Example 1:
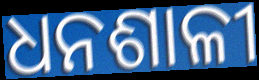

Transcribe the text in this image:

ଧନଶାଳୀ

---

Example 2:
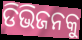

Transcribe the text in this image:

ଡିଭିଜନକୁ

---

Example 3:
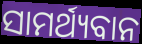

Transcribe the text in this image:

ସାମର୍ଥ୍ୟବାନ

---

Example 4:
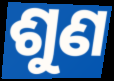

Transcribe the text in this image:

ଶୁଣ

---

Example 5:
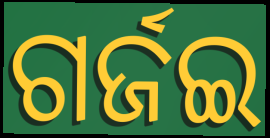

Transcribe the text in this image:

ଗର୍ଜଇ